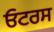
ਓਟਰਸ